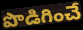
పొడిగించే